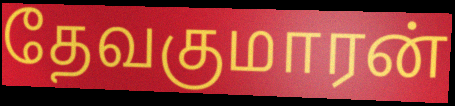
தேவகுமாரன்